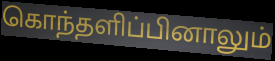
கொந்தளிப்பினாலும்